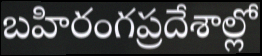
బహిరంగప్రదేశాల్లో